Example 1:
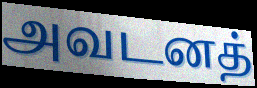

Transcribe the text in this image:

அவடனத்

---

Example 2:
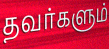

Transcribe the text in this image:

தவர்களும்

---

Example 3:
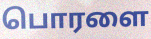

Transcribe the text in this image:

பொரளை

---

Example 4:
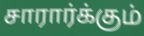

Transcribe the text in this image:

சாரார்க்கும்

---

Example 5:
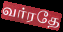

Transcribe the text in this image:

வர்ரதே